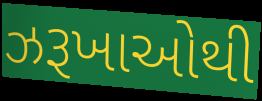
ઝરૂખાઓથી